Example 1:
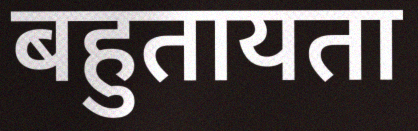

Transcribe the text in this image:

बहुतायता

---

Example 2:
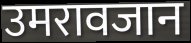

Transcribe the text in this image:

उमरावजान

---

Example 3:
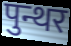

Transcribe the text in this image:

पुन्थर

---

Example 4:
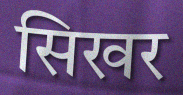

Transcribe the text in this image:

सिखर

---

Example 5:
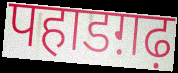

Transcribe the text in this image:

पहाडग़ढ़